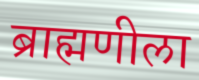
ब्राह्मणीला